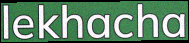
lekhacha